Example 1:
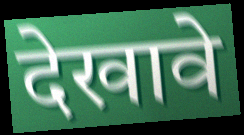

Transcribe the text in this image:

देखावे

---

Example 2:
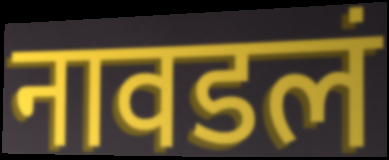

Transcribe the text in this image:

नावडलं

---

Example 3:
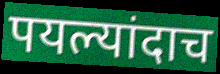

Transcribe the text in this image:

पयल्यांदाच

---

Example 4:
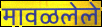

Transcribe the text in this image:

मावळलेले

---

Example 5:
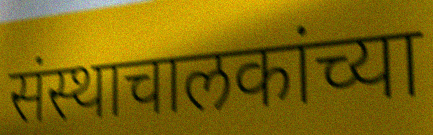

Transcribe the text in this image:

संस्थाचालकांच्या